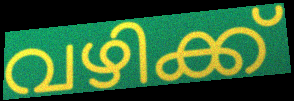
വഴിക്ക്